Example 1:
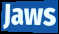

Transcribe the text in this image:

Jaws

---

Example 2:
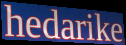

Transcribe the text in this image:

hedarike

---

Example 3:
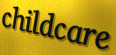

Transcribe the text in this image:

childcare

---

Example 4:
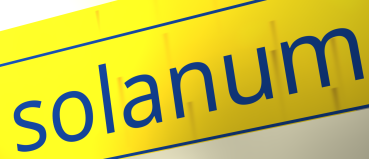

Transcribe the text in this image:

solanum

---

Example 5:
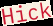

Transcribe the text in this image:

Hick